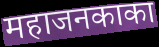
महाजनकाका